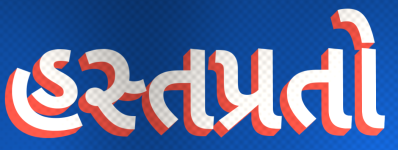
હસ્તપ્રતો